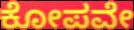
ಕೋಪವೇ